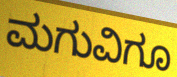
ಮಗುವಿಗೂ